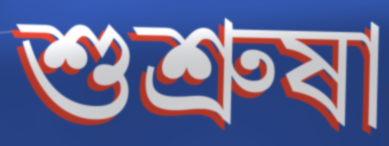
শুশ্রুষা